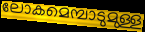
ലോകമെമ്പാടുമുള്ള